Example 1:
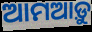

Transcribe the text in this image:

ଆମଆଡ଼ୁ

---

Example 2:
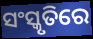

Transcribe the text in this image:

ସଂସ୍କୃତିରେ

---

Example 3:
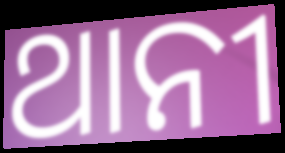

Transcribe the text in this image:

ଥାନୀ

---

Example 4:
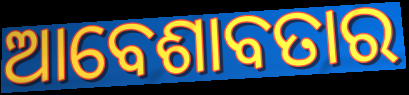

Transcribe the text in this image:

ଆବେଶାବତାର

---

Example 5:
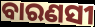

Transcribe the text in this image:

ବାରଣସୀ